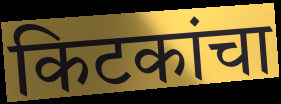
किटकांचा